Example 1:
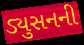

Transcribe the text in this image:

ડ્યુસનની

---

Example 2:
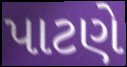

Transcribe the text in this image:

પાટણે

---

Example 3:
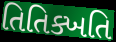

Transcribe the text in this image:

તિતિક્ખતિ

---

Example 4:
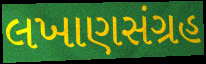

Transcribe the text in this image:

લખાણસંગ્રહ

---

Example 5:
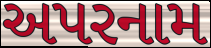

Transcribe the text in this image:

અપરનામ